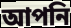
আপনি